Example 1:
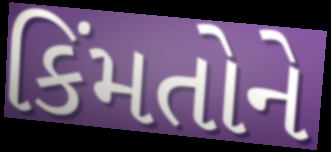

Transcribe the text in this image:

કિંમતોને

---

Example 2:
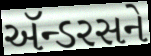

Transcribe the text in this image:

ઍન્ડરસને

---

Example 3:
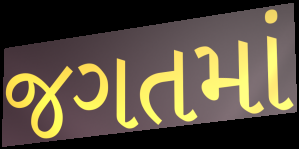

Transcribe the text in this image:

જગતમાં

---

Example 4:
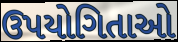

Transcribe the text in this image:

ઉપયોગિતાઓ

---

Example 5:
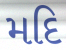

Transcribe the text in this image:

મદિ